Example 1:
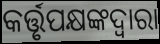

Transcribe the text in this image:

କର୍ତ୍ତୃପକ୍ଷଙ୍କଦ୍ଵାରା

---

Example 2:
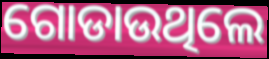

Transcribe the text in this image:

ଗୋଡାଉଥିଲେ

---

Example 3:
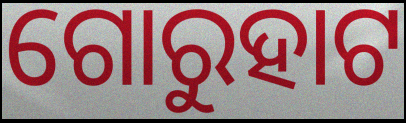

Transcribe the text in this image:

ଗୋରୁହାଟ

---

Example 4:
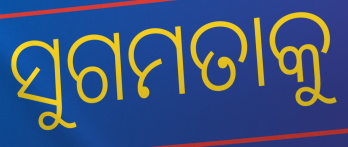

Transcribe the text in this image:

ସୁଗମତାକୁ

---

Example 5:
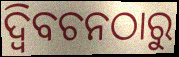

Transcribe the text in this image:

ଦ୍ବିବଚନଠାରୁ